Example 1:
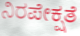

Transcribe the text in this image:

ನಿರಪೇಕ್ಷತೆ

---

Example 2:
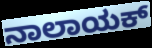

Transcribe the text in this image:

ನಾಲಾಯಕ್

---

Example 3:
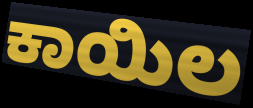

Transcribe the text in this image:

ಕಾಯಿಲ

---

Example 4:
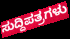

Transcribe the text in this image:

ಸುದ್ದಿಪತ್ರಗಳು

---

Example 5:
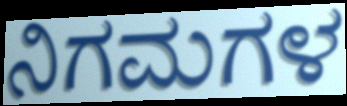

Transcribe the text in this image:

ನಿಗಮಗಳ